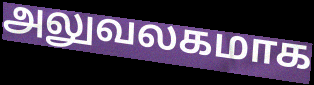
அலுவலகமாக